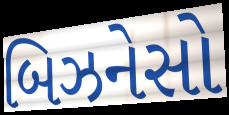
બિઝનેસો